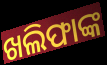
ଖଲିଫାଙ୍କ